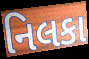
નિલકા